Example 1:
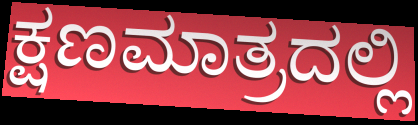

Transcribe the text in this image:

ಕ್ಷಣಮಾತ್ರದಲ್ಲಿ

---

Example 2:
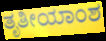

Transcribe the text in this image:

ತೃತೀಯಾಂಶ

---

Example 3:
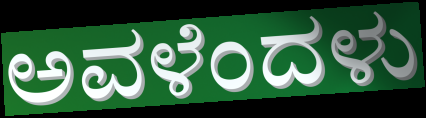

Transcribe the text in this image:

ಅವಳೆಂದಳು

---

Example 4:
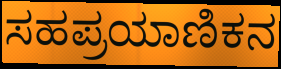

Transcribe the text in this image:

ಸಹಪ್ರಯಾಣಿಕನ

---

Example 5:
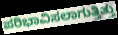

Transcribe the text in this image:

ಪರಿಭಾವಿಸಲಾಗುತ್ತಿತ್ತು